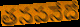
తనపనేదో